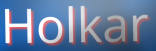
Holkar